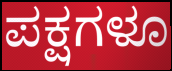
ಪಕ್ಷಗಳೂ